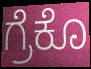
ಗ್ರೆಕೊ